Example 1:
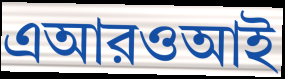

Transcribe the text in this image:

এআরওআই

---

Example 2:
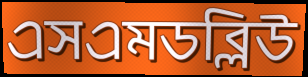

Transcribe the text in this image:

এসএমডব্লিউ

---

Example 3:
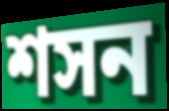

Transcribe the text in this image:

শসন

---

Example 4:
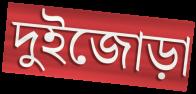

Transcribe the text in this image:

দুইজোড়া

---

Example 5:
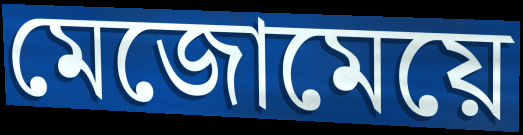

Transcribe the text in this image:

মেজোমেয়ে